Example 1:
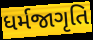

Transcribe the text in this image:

ધર્મજાગૃતિ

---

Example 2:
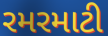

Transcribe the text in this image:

રમરમાટી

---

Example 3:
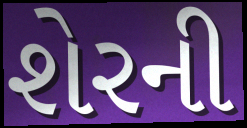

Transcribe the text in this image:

શેરની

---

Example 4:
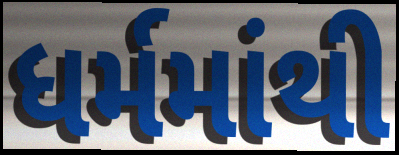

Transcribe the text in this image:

ધર્મમાંથી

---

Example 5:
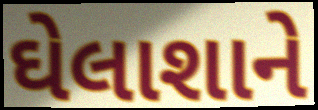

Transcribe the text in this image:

ઘેલાશાને